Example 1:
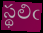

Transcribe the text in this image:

స్థలిఁ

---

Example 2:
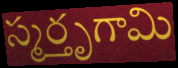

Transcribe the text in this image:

స్మర్తృగామి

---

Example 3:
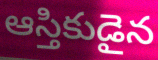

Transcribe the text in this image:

ఆస్తికుడైన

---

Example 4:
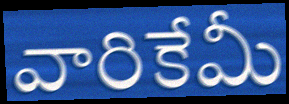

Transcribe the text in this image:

వారికేమీ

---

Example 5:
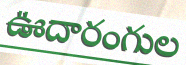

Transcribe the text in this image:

ఊదారంగుల